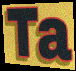
Ta